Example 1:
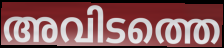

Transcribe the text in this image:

അവിടത്തെ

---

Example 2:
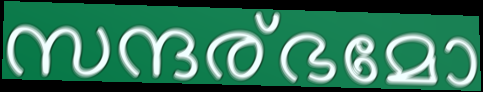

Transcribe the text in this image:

സന്ദര്ഭമോ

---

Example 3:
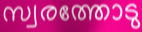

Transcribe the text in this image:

സ്വരത്തോടു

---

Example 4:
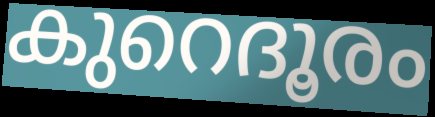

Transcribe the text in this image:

കുറെദൂരം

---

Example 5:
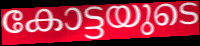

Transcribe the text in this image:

കോട്ടയുടെ